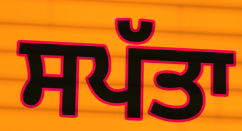
ਸਪੱਤਾ